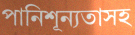
পানিশূন্যতাসহ